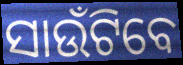
ସାଉଁଟିବେ